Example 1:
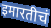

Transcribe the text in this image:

इमारतीचं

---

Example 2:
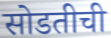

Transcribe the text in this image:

सोडतीची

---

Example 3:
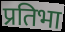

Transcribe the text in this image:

प्रतिभा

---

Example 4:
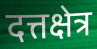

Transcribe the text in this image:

दत्तक्षेत्र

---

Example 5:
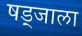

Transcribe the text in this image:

षड्जाला